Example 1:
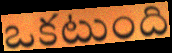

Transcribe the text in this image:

ఒకటుంది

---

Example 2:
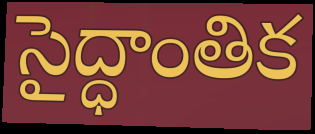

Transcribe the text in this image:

సైద్ధాంతిక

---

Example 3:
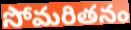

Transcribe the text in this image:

సోమరితనం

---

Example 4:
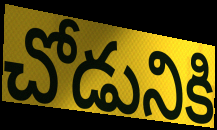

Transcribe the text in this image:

చోడునికి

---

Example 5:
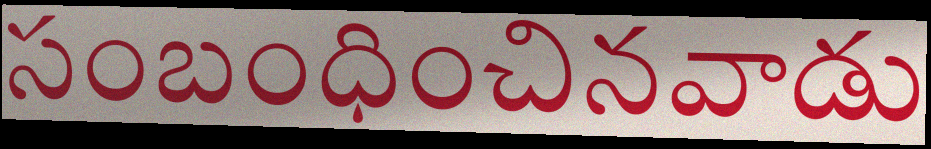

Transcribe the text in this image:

సంబంధించినవాడు